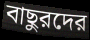
বাছুরদের